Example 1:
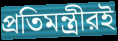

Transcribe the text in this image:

প্রতিমন্ত্রীরই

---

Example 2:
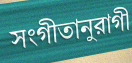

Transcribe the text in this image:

সংগীতানুরাগী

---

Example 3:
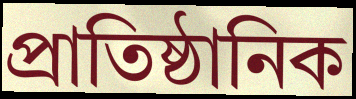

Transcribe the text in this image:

প্রাতিষ্ঠানিক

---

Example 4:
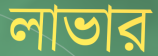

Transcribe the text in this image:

লাভার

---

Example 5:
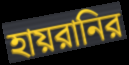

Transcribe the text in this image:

হায়রানির